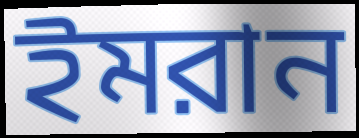
ইমরান